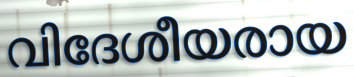
വിദേശീയരായ